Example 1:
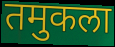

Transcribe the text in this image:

तमुकला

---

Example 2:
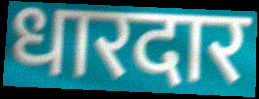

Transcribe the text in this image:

धारदार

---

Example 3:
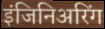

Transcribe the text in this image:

इंजिनिअरिंग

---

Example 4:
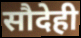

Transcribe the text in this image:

सौदेही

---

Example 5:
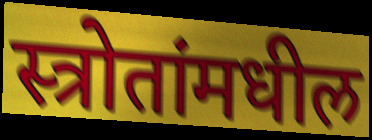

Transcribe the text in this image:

स्त्रोतांमधील